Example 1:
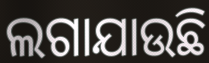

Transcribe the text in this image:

ଲଗାଯାଉଛି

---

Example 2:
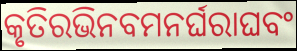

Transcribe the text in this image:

କୃତିରଭିନବମନର୍ଘରାଘବଂ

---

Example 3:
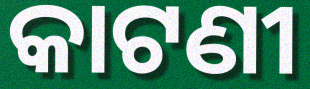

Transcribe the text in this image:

କାଟଣୀ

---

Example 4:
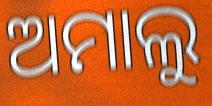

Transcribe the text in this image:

ଅମାଲୁ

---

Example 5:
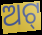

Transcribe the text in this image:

ଅଟ୍